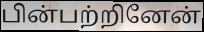
பின்பற்றினேன்